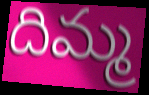
దిమ్మ